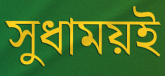
সুধাময়ই